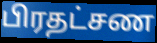
பிரதட்சண